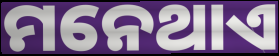
ମନେଥାଏ